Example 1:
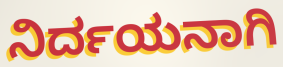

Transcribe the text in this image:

ನಿರ್ದಯನಾಗಿ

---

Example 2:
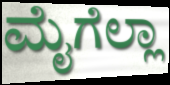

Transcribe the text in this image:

ಮೈಗೆಲ್ಲಾ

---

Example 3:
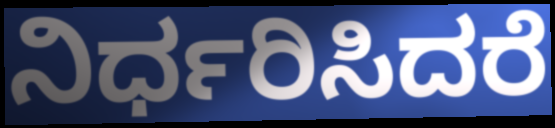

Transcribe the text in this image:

ನಿರ್ಧರಿಸಿದರೆ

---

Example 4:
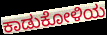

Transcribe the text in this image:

ಕಾಡುಕೋಳಿಯ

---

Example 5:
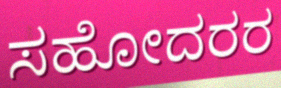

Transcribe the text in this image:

ಸಹೋದರರ